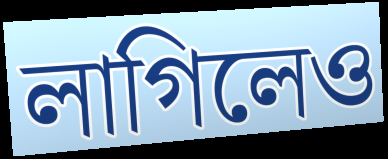
লাগিলেও